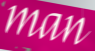
man